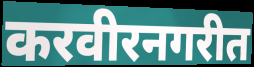
करवीरनगरीत